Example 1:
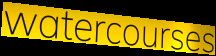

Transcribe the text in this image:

watercourses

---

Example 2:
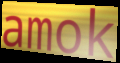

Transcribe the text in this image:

amok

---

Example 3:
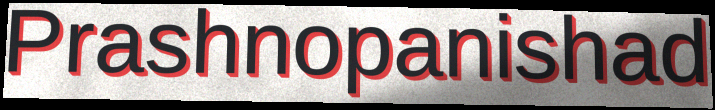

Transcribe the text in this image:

Prashnopanishad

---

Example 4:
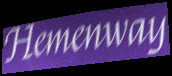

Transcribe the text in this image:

Hemenway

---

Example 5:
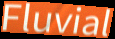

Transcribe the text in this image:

Fluvial